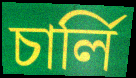
চাৰ্লি